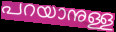
പറയാനുള്ള